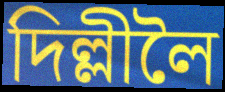
দিল্লীলৈ